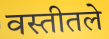
वस्तीतले